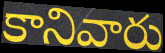
కానివారు